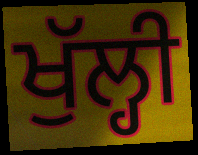
ਖੁੱਲ੍ਹੀ